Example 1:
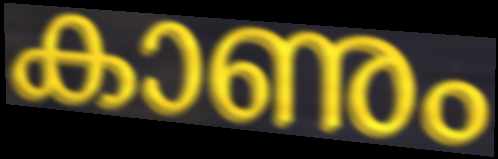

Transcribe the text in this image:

കാണും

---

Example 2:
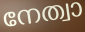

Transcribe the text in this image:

നേത്വാ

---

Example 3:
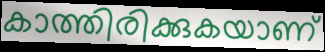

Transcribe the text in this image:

കാത്തിരിക്കുകയാണ്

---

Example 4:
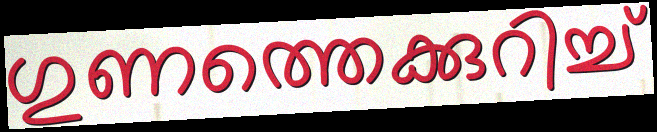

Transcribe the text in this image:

ഗുണത്തെക്കുറിച്ച്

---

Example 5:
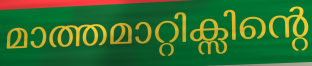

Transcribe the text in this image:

മാത്തമാറ്റിക്സിന്റെ